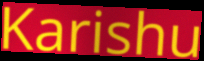
Karishu